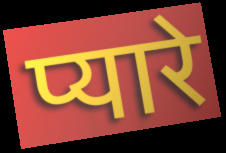
प्यारे